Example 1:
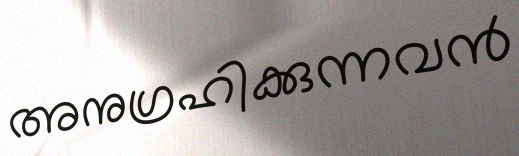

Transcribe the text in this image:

അനുഗ്രഹിക്കുന്നവൻ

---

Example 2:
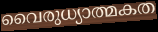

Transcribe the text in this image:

വൈരുധ്യാത്മകത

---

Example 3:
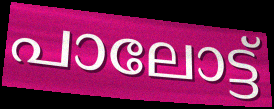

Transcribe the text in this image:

പാലോട്ട്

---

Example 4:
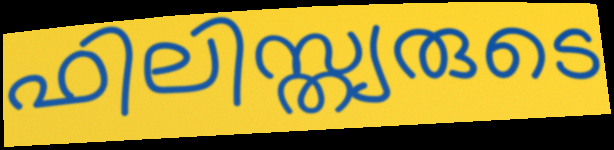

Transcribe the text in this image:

ഫിലിസ്ത്യരുടെ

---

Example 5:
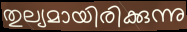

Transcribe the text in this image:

തുല്യമായിരിക്കുന്നു